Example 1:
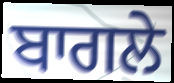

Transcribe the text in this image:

ਬਾਗਲੇ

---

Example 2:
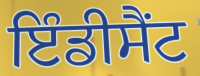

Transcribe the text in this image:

ਇੰਡੀਸੈਂਟ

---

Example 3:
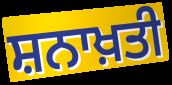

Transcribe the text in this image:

ਸ਼ਨਾਖ਼ਤੀ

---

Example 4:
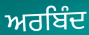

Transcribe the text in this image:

ਅਰਬਿੰਦ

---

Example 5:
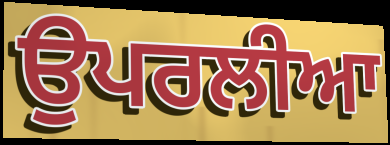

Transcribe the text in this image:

ਉਪਰਲੀਆ